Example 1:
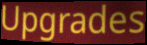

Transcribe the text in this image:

Upgrades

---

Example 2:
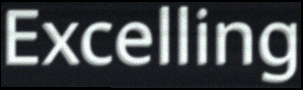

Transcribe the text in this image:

Excelling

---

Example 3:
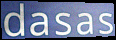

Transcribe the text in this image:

dasas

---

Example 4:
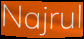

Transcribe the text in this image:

Najrul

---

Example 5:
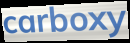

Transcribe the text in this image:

carboxy